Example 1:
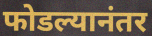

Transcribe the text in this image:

फोडल्यानंतर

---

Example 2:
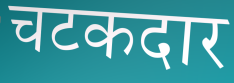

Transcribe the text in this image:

चटकदार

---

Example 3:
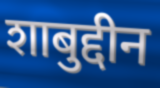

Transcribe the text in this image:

शाबुद्दीन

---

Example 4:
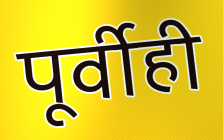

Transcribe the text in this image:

पूर्वीही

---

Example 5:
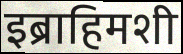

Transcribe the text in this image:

इब्राहिमशी